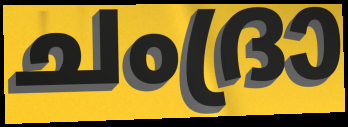
ചംദ്രാ